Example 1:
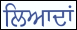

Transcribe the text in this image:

ਲਿਆਦਾਂ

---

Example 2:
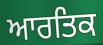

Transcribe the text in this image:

ਆਰਤਿਕ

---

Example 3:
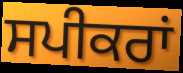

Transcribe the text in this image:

ਸਪੀਕਰਾਂ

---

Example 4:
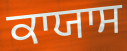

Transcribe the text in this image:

ਕਾਯਾਸ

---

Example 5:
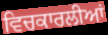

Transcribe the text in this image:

ਵਿਚਕਾਰਲੀਆਂ